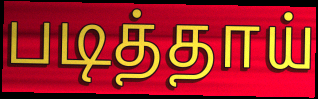
படித்தாய்